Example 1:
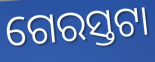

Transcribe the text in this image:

ଗେରସ୍ତଟା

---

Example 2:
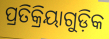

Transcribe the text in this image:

ପ୍ରତିକ୍ରିୟାଗୁଡ଼ିକ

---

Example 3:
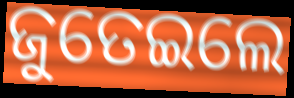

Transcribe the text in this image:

ଜୁତେଇଲେ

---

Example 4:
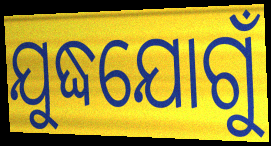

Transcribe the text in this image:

ଯୁଦ୍ଧଯୋଗୁଁ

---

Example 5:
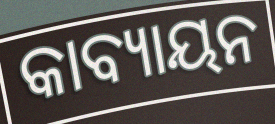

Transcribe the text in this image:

କାବ୍ୟାୟନ